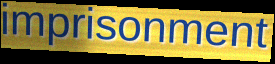
imprisonment